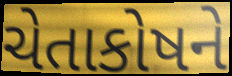
ચેતાકોષને